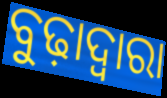
ବୁଢ଼ାଦ୍ୱାରା